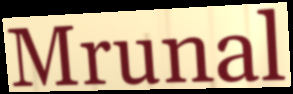
Mrunal